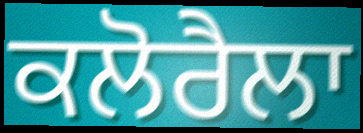
ਕਲੋਰੈਲਾ